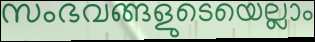
സംഭവങ്ങളുടെയെല്ലാം